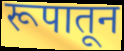
रूपातून